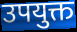
उपयुक्त